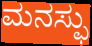
ಮನಸ್ಫು